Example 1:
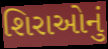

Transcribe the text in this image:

શિરાઓનું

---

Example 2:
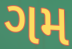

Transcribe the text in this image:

ગમ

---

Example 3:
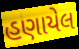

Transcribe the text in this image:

હણાયેલ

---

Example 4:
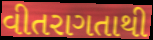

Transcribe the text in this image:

વીતરાગતાથી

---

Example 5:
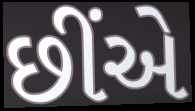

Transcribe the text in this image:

છીંએ